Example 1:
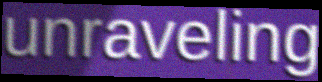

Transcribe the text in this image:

unraveling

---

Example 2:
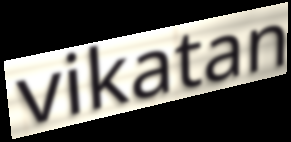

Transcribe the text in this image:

vikatan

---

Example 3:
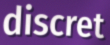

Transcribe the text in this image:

discret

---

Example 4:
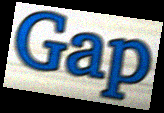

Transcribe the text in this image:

Gap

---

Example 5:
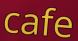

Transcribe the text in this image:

cafe